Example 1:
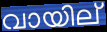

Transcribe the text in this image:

വായില്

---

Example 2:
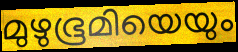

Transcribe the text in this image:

മുഴുഭൂമിയെയും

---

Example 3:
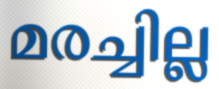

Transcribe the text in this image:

മരച്ചില്ല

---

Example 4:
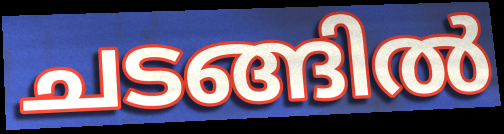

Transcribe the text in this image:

ചടങ്ങിൽ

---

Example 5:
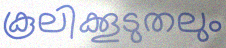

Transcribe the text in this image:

കൂലിക്കൂടുതലും